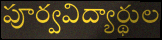
పూర్వవిద్యార్థుల